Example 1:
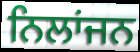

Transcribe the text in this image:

ਨਿਲਾਂਜਨ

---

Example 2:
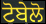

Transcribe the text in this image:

ਟੋਬੇਲੋ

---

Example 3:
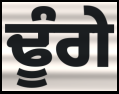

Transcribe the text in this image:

ਢੂੰਗੇ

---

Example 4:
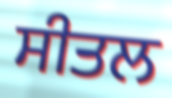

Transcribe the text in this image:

ਸੀਤਲ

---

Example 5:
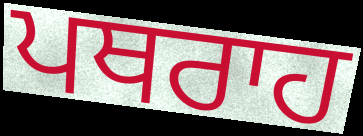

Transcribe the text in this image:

ਪਥਰਾਹ